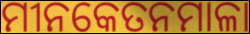
ମୀନକେତନମାଳା